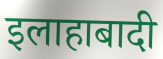
इलाहाबादी